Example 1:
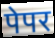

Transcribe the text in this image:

पेपर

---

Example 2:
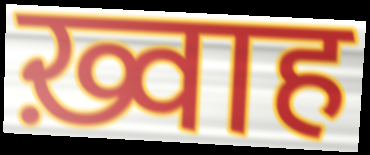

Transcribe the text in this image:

ख़्वाह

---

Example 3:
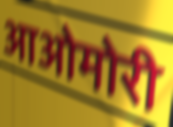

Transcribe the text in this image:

आओमोरी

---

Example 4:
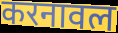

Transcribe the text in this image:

करनावल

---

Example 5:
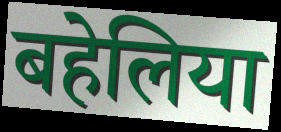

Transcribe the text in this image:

बहेलिया